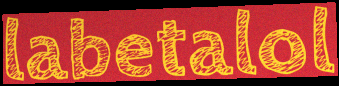
labetalol